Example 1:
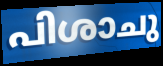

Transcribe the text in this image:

പിശാചു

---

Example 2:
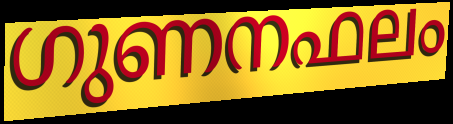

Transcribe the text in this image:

ഗുണനഫലം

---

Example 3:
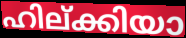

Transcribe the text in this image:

ഹില്ക്കിയാ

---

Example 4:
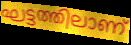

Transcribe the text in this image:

ഘട്ടത്തിലാണ്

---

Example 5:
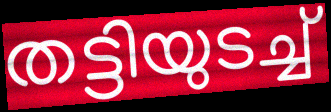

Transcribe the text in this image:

തട്ടിയുടച്ച്